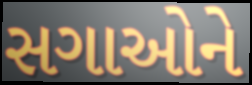
સગાઓને